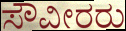
ಸೌವೀರರು